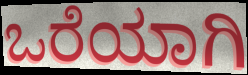
ಒರೆಯಾಗಿ